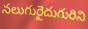
నలుగురైదుగురిని